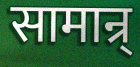
सामान्र्